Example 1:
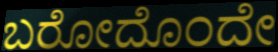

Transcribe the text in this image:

ಬರೋದೊಂದೇ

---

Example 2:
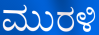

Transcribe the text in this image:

ಮುರಳಿ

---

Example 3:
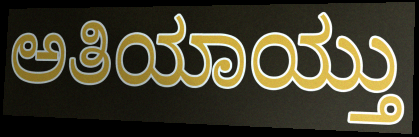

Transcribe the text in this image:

ಅತಿಯಾಯ್ತು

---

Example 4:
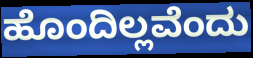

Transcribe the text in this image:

ಹೊಂದಿಲ್ಲವೆಂದು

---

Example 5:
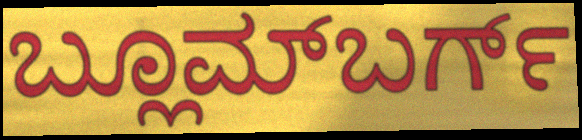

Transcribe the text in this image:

ಬ್ಲೂಮ್‌ಬರ್ಗ್